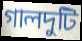
গালদুটি